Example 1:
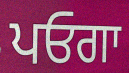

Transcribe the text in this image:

ਪਓਗਾ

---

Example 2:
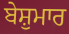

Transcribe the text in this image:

ਬੇਸ਼ੁਮਾਰ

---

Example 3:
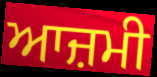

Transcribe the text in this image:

ਆਜ਼ਮੀ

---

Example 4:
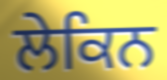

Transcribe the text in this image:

ਲੇਕਿਨ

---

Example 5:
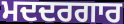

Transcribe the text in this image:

ਮਦਦਰਗਾਰ